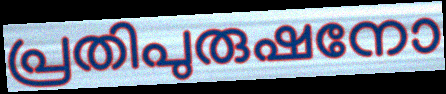
പ്രതിപുരുഷനോ